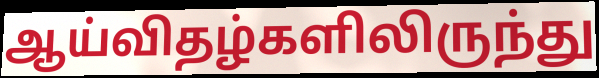
ஆய்விதழ்களிலிருந்து